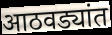
आठवड्यांत